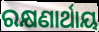
ରକ୍ଷଣାର୍ଥାୟ